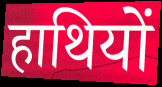
हाथियों